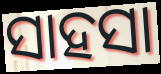
ସାହସା